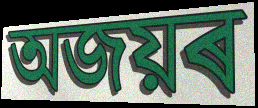
অজয়ৰ